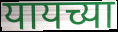
यायच्या